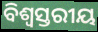
ବିଶ୍ଵସ୍ତରୀୟ